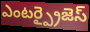
ఎంటర్ప్రైజెస్